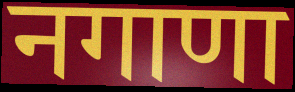
नगाणा